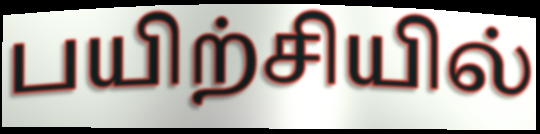
பயிற்சியில்